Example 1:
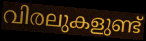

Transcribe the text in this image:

വിരലുകളുണ്ട്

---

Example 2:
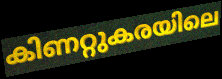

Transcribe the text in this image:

കിണറ്റുകരയിലെ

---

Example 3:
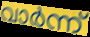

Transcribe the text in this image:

വാർന്ന്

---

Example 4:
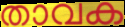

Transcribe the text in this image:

താവക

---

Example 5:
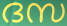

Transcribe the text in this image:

ദസ